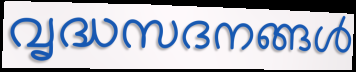
വൃദ്ധസദനങ്ങൾ